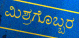
ಮಿಶ್ರಗೊಬ್ಬರ